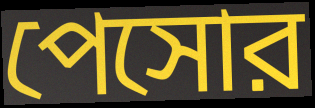
পেসোর